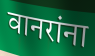
वानरांना